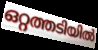
ഒറ്റത്തടിയിൽ